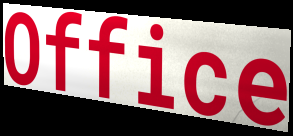
Office